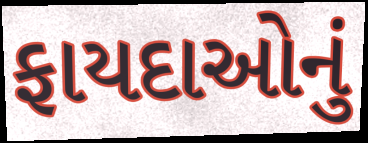
ફાયદાઓનું